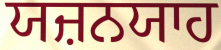
ਯਜ਼ਨਯਾਹ